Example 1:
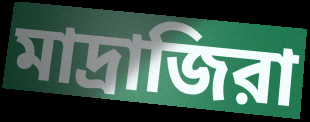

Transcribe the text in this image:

মাদ্রাজিরা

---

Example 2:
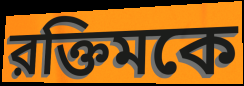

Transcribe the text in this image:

রক্তিমকে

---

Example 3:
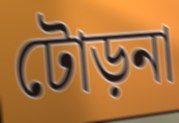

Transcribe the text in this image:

টোড়না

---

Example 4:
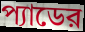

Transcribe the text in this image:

প্যাডের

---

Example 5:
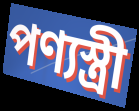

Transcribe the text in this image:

পণ্যস্ত্রী